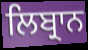
ਲਿਬ੍ਰਾਨ